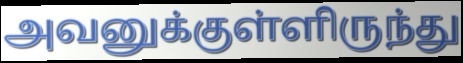
அவனுக்குள்ளிருந்து